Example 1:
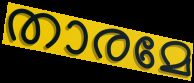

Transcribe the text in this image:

താരമേ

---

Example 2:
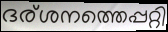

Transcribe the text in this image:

ദര്ശനത്തെപ്പറ്റി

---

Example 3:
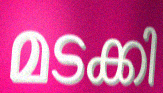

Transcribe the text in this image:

മടക്കി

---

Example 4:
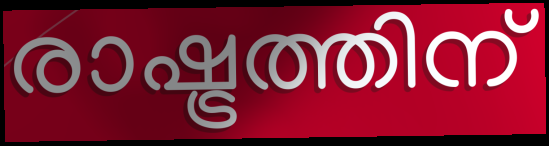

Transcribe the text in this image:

രാഷ്ട്രത്തിന്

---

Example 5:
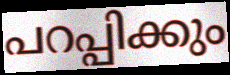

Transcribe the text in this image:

പറപ്പിക്കും